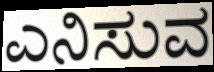
ಎನಿಸುವ